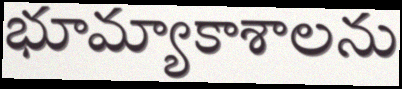
భూమ్యాకాశాలను